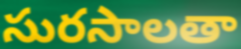
సురసాలతా